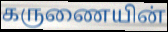
கருணையின்